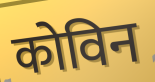
कोविन